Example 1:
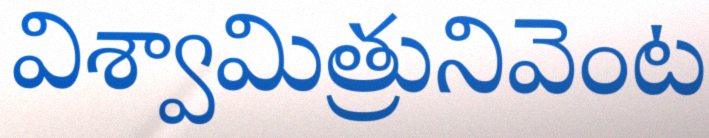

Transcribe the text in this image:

విశ్వామిత్రునివెంట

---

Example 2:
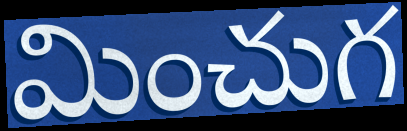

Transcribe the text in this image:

మించుగ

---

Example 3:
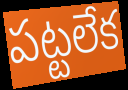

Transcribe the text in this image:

పట్టలేక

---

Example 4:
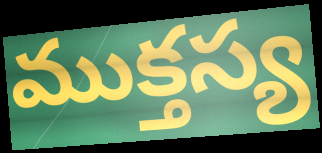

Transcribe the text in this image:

ముక్తస్య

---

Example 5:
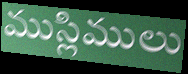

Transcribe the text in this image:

ముస్లిములు